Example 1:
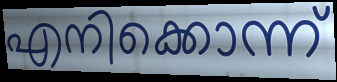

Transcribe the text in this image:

എനിക്കൊന്ന്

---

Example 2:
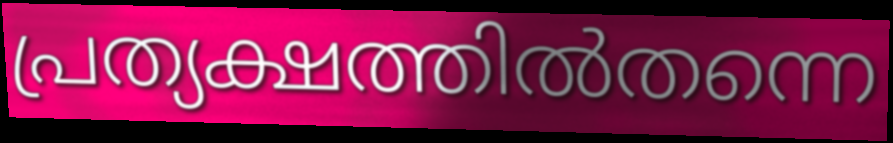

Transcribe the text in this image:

പ്രത്യക്ഷത്തിൽതന്നെ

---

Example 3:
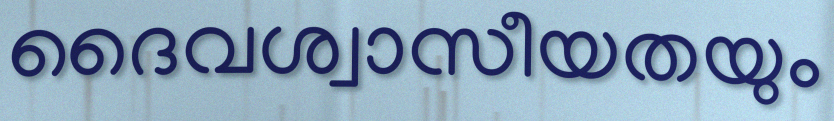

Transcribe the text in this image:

ദൈവശ്വാസീയതയും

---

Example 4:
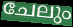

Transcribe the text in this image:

ചേലും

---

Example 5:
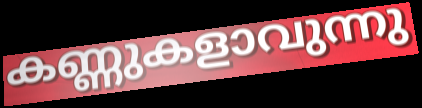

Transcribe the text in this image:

കണ്ണുകളാവുന്നു